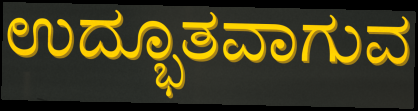
ಉದ್ಭೂತವಾಗುವ